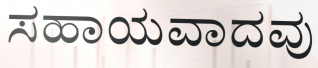
ಸಹಾಯವಾದವು